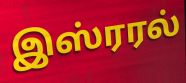
இஸ்ரரல்